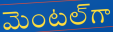
మెంటల్‌గా